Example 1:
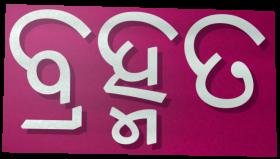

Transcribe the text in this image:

ବ୍ରହ୍ମତ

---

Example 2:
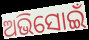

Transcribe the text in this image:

ଅଭିସୋଇଁ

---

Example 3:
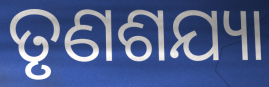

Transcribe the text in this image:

ତୃଣଶଯ୍ୟା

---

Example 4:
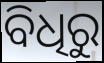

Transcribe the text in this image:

ବିଧିରୁ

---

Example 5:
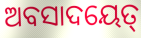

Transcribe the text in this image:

ଅବସାଦୟେତ୍